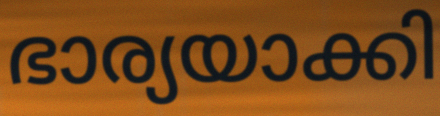
ഭാര്യയാക്കി